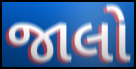
જાલો